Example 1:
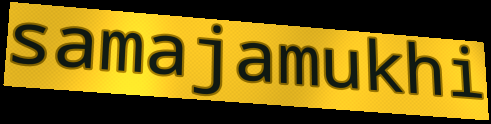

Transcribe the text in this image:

samajamukhi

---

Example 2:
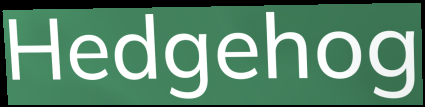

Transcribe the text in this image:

Hedgehog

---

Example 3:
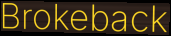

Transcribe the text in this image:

Brokeback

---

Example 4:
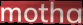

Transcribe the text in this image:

motha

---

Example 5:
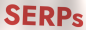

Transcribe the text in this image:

SERPs